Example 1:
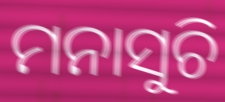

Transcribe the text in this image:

ମନାସୁଚି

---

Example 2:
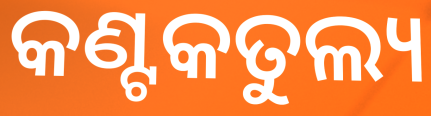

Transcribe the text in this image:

କଣ୍ଟକତୁଲ୍ୟ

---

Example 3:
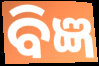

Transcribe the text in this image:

ବିଜ୍ଞ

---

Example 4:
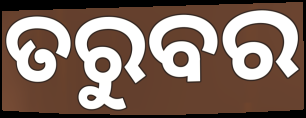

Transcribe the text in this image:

ତରୁବର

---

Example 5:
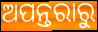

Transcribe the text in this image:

ଅପନ୍ତରାରୁ